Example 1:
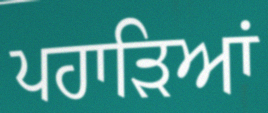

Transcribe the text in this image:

ਪਹਾੜਿਆਂ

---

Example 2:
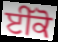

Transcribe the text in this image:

ਈੱਕੋ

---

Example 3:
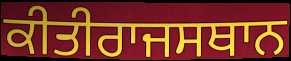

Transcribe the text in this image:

ਕੀਤੀਰਾਜਸਥਾਨ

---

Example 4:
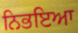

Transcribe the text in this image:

ਨਿਭਇਆ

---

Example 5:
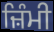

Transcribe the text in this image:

ਜ਼ਿੰਮੀ